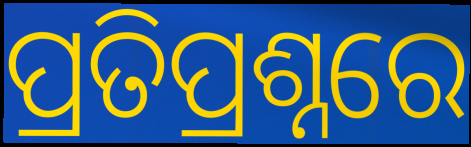
ପ୍ରତିପ୍ରଶ୍ନରେ